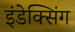
इंडेक्सिंग